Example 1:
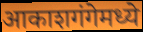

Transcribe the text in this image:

आकाशगंगेमध्ये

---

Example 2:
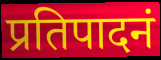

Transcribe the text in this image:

प्रतिपादनं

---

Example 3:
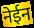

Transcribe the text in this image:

नेईन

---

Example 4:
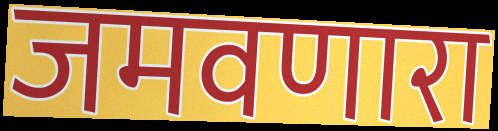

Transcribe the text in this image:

जमवणारा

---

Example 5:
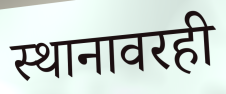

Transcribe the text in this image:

स्थानावरही